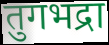
तुगभद्रा